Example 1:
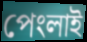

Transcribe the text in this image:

পেংলাই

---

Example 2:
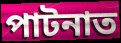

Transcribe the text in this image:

পাটনাত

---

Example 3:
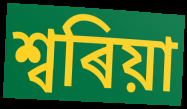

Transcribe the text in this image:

শ্বৰিয়া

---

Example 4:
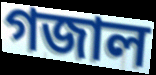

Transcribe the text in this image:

গজাল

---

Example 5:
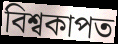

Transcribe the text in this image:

বিশ্বকাপত